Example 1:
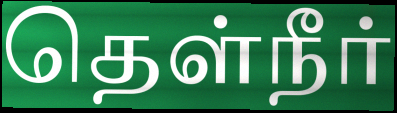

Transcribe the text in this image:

தெள்நீர்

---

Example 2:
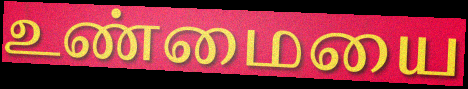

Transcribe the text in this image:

உண்மையை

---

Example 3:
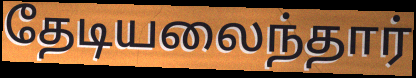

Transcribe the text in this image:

தேடியலைந்தார்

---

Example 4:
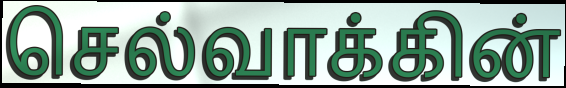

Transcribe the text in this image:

செல்வாக்கின்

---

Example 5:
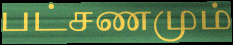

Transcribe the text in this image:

பட்சணமும்